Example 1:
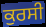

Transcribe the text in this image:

ਕੁਰਸੀ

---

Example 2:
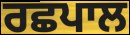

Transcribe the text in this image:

ਰਛਪਾਲ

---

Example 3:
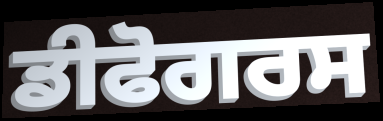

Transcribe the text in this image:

ਡੀਫੋਗਰਸ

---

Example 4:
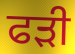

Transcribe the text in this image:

ਫੜੀ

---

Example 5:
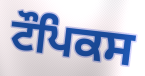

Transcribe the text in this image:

ਟੌਪਿਕਸ